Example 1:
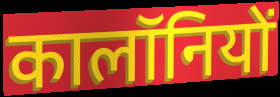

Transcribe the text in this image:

कालॉनियों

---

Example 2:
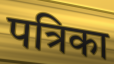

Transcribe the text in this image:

पत्रिका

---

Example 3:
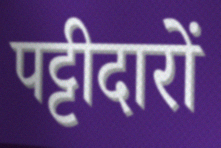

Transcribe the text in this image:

पट्टीदारों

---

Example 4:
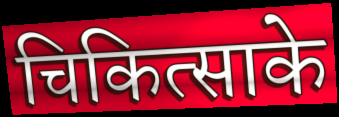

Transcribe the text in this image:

चिकित्साके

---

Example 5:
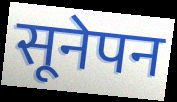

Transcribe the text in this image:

सूनेपन